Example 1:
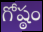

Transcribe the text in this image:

గోష్ఠం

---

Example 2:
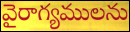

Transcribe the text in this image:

వైరాగ్యములను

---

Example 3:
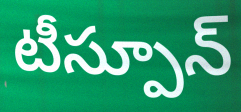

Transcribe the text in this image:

టీస్పూన్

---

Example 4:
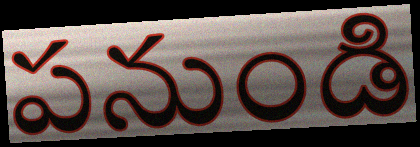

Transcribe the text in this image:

పనుండి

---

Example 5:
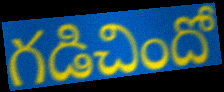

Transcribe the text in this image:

గడిచిందో